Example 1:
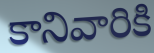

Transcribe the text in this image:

కానివారికి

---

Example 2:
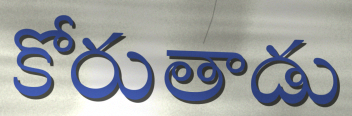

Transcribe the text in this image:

కోరుతాడు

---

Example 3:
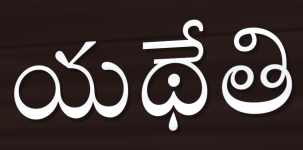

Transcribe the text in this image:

యథేతి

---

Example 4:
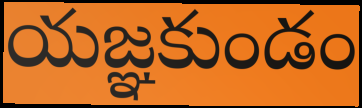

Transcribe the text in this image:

యజ్ఞకుండం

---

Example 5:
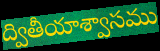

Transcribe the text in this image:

ద్వితీయాశ్వాసము